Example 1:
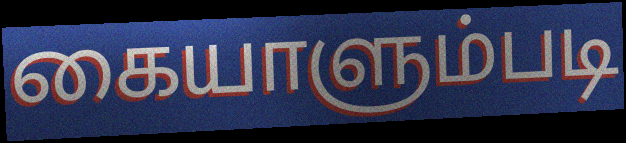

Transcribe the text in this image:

கையாளும்படி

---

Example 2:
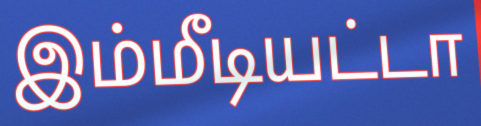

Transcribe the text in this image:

இம்மீடியட்டா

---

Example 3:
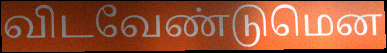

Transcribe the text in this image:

விடவேண்டுமென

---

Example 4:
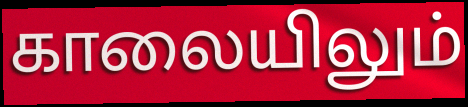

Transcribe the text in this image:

காலையிலும்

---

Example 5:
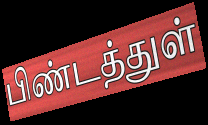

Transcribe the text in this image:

பிண்டத்துள்